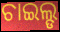
ଚାଇଲ୍ଡ